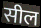
सील